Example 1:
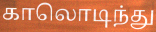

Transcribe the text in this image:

காலொடிந்து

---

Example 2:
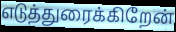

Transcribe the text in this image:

எடுத்துரைக்கிறேன்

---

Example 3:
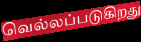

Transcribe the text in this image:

வெல்லப்படுகிறது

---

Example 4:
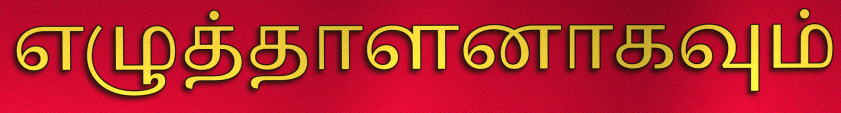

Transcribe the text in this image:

எழுத்தாளனாகவும்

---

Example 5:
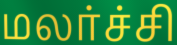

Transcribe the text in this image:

மலர்ச்சி